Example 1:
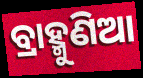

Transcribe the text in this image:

ବ୍ରାହ୍ମୁଣିଆ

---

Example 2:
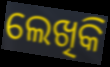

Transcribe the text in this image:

ଲେଖିକି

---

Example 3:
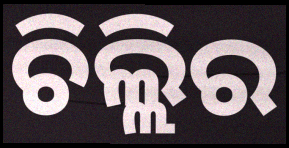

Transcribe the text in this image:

ଚିଲ୍ଲିର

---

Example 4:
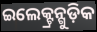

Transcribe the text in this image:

ଇଲେକ୍ଟ୍ରନ୍ଗୁଡ଼ିକ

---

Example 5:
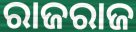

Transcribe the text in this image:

ରାଜରାଜ